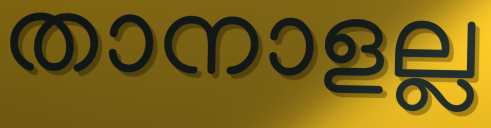
താനാളല്ല